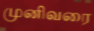
முனிவரை